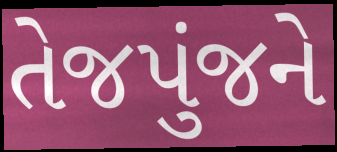
તેજપુંજને